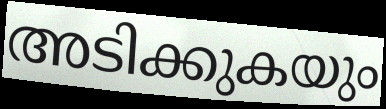
അടിക്കുകയും